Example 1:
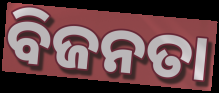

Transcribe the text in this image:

ବିଜନତା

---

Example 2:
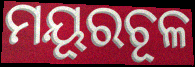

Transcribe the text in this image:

ମୟୂରଚୂଳ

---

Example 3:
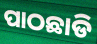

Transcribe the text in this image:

ପାଠଛାଡି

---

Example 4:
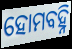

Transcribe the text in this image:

ହୋମବହ୍ନି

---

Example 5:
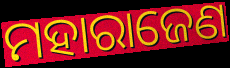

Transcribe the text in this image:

ମହାରାଜେଣ